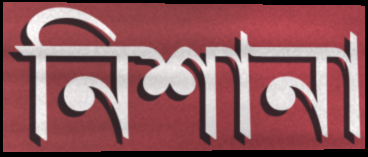
নিশানা